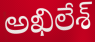
అఖిలేశ్